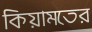
কিয়ামতের